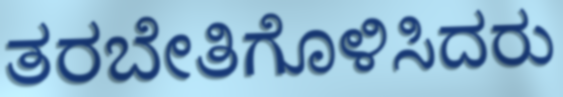
ತರಬೇತಿಗೊಳಿಸಿದರು